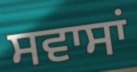
ਸਵਾਸਾਂ